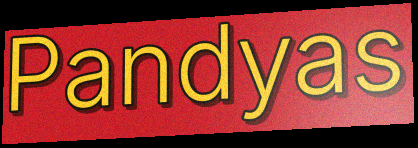
Pandyas